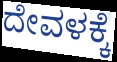
ದೇವಳಕ್ಕೆ